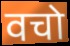
वचो